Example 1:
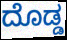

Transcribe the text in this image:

ದೊಡ್ಡ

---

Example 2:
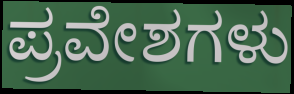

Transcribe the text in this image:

ಪ್ರವೇಶಗಳು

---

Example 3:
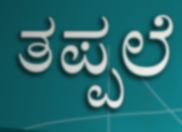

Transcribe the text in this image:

ತಪ್ಪಲೆ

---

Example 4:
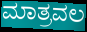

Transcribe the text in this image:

ಮಾತ್ರವಲ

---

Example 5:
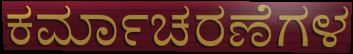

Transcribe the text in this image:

ಕರ್ಮಾಚರಣೆಗಳ